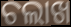
ଚଲାଖ